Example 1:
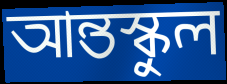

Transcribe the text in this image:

আন্তস্কুল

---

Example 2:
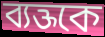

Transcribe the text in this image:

ব্যক্তকে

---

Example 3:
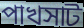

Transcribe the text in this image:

পাখসাট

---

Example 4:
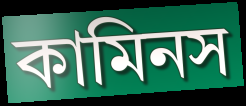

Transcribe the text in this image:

কামিনস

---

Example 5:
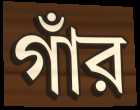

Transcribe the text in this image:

গাঁর